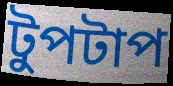
টুপটাপ